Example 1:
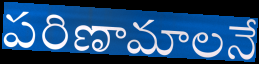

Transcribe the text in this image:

పరిణామాలనే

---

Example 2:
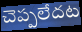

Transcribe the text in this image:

చెప్పలేదట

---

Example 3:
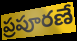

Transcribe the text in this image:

ప్రపూరణే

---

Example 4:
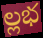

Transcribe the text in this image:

ల్లభ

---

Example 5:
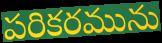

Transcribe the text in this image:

పరికరమును